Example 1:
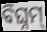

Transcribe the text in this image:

ବିଘ୍ନମ୍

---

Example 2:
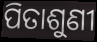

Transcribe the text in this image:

ପିତାଶୁଣୀ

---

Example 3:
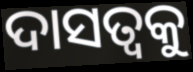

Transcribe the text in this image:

ଦାସତ୍ୱକୁ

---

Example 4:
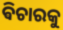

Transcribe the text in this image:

ଵିଚାରକୁ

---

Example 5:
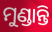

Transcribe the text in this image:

ମୁଣ୍ଡାନ୍ତି